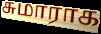
சுமாராக